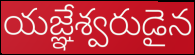
యజ్ఞేశ్వరుడైన